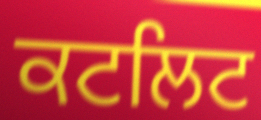
ਕਟਲਿਟ